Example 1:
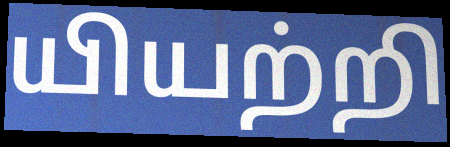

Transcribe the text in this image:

யியற்றி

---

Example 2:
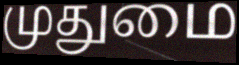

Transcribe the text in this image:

முதுமை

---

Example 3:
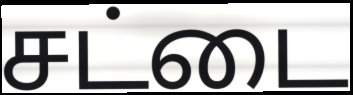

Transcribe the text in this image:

சட்டை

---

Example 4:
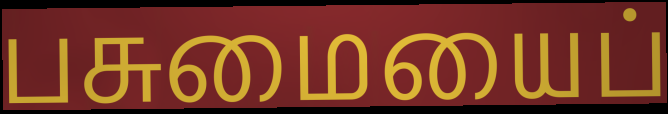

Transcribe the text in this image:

பசுமையைப்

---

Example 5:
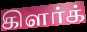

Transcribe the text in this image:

கிளர்க்